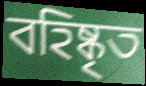
বহিষ্কৃত